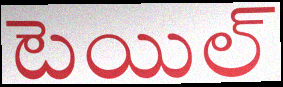
టెయిల్